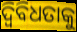
ଦ୍ୱିବିଧତାକୁ